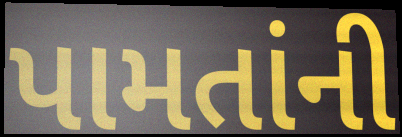
પામતાંની